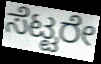
ಸೆಟ್ಟರೇ